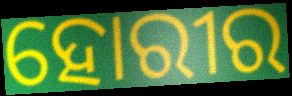
ହୋରୀର